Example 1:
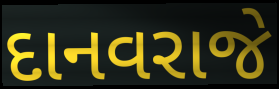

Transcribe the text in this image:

દાનવરાજે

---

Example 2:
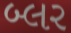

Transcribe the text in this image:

બ્લર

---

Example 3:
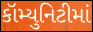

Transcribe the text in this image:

કૉમ્યુનિટીમાં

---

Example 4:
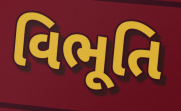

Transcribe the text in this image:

વિભૂતિ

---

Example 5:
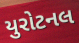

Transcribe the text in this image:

યુરોટનલ